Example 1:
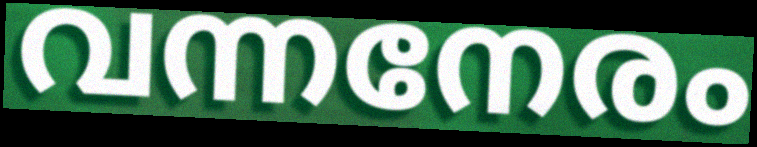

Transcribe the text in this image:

വന്നനേരം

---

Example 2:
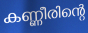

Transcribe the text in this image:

കണ്ണീരിന്റെ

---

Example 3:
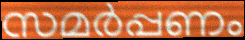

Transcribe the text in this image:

സമർപ്പണം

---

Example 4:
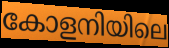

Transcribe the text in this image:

കോളനിയിലെ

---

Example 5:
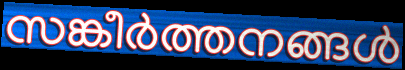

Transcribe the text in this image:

സങ്കീർത്തനങ്ങൾ